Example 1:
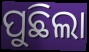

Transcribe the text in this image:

ପୁଛିଲା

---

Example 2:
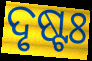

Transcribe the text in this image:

ଦୃଷ୍ଟଃ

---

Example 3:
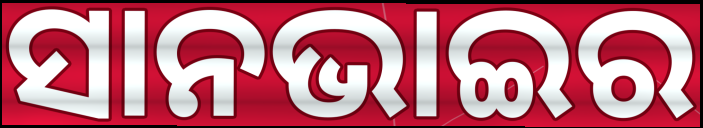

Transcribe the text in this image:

ସାନଭାଇର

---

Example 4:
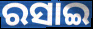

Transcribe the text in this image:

ରସାଇ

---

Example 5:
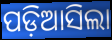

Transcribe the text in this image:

ପଡ଼ିଆସିଲା